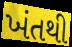
ખંતથી